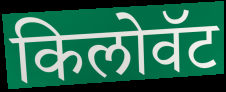
किलोवॅट